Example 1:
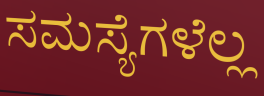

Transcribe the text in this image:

ಸಮಸ್ಯೆಗಳೆಲ್ಲ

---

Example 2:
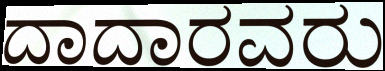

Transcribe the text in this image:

ದಾದಾರವರು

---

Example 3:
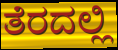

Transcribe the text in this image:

ತೆರದಲ್ಲಿ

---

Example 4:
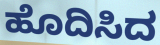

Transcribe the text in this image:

ಹೊದಿಸಿದ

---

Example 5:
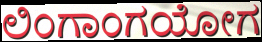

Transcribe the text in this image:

ಲಿಂಗಾಂಗಯೋಗ